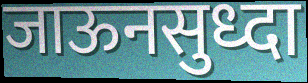
जाऊनसुध्दा